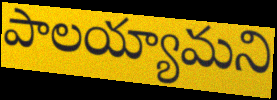
పాలయ్యామని